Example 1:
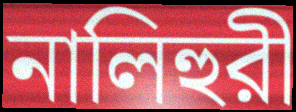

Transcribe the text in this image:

নালিহুরী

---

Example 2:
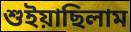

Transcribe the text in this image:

শুইয়াছিলাম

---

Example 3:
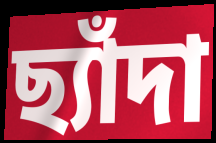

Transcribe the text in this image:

ছ্যাঁদা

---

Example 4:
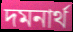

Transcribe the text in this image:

দমনার্থ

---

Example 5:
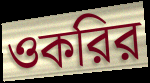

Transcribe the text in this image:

ওকরির